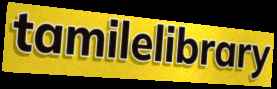
tamilelibrary